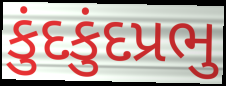
કુંદકુંદપ્રભુ